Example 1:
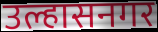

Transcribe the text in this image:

उल्हासनगर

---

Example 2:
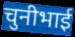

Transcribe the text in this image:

चुनीभाई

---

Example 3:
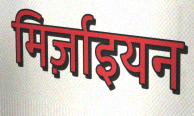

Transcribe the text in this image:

मिर्ज़ाइयन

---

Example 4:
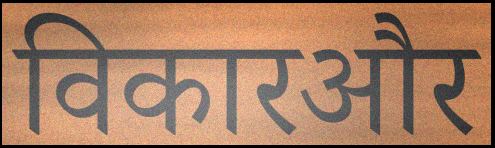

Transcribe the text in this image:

विकारऔर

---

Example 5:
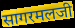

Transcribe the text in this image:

सागरमलजी